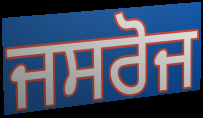
ਜਸਰੋਜ